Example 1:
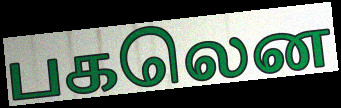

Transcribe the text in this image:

பகலென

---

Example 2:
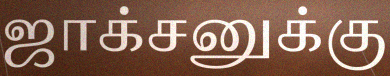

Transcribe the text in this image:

ஜாக்சனுக்கு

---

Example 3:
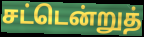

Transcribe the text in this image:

சட்டென்றுத்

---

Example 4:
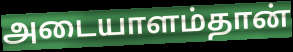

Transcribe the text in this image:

அடையாளம்தான்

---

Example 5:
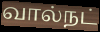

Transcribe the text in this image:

வால்நட்